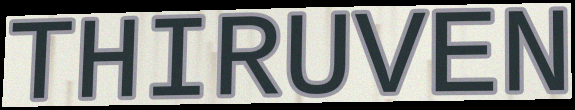
THIRUVEN